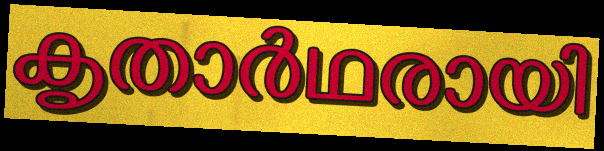
കൃതാർഥരായി